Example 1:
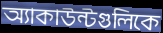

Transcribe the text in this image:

অ্যাকাউন্টগুলিকে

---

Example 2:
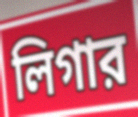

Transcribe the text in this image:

লিগার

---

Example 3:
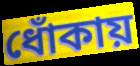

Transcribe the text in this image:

ধোঁকায়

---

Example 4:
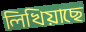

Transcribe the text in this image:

লিখিয়াছে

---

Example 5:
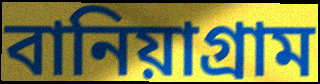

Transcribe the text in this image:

বানিয়াগ্রাম